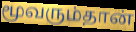
மூவரும்தான்